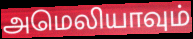
அமெலியாவும்